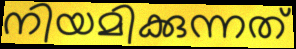
നിയമിക്കുന്നത്